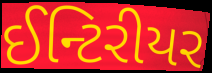
ઈન્ટિરીયર